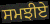
ਸਮਝੀਏ